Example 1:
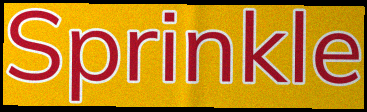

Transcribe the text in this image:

Sprinkle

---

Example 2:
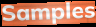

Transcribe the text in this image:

Samples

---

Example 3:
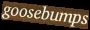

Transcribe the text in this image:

goosebumps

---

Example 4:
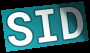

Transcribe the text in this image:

SID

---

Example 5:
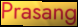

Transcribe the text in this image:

Prasang